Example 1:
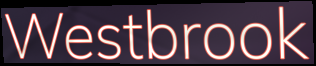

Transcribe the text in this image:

Westbrook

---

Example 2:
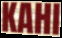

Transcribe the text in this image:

KAHI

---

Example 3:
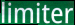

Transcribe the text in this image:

limiter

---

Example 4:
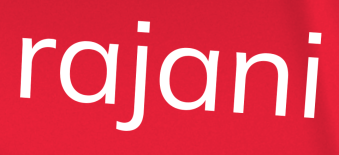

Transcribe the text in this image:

rajani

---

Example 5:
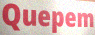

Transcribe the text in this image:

Quepem